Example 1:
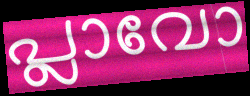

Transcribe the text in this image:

പ്ലാവോ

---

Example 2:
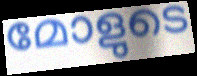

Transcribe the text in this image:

മോളുടെ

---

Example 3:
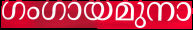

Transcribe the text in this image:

ഗംഗായമുനാ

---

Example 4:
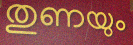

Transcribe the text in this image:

തുണയും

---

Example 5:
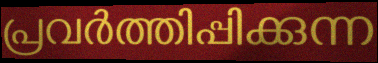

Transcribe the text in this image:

പ്രവർത്തിപ്പിക്കുന്ന